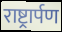
राष्ट्रार्पण